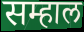
सम्हाल